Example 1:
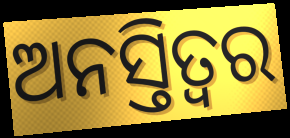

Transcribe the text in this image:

ଅନସ୍ତିତ୍ୱର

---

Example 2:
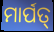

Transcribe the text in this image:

ମାର୍ପତ୍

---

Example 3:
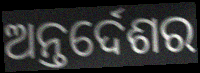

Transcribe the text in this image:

ଅନ୍ତର୍ଦେଶର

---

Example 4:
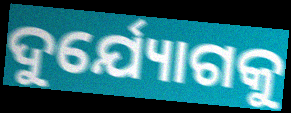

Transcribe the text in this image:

ଦୁର୍ଯ୍ୟୋଗକୁ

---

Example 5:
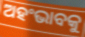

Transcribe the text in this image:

ଅହଂଭାବକୁ